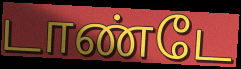
டாண்டே